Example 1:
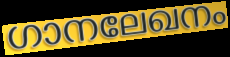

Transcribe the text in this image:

ഗാനലേഖനം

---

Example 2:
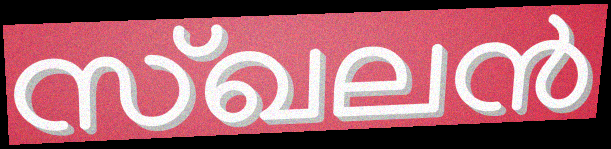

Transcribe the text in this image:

സ്ഖലൻ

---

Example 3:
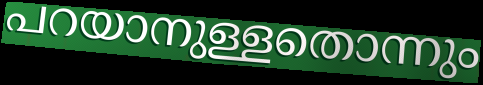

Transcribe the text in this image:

പറയാനുള്ളതൊന്നും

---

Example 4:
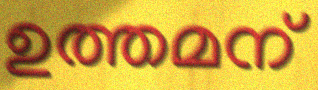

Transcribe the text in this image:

ഉത്തമന്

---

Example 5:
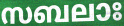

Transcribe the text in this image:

സബലാഃ